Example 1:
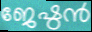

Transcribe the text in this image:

ജേഷ്ഠൻ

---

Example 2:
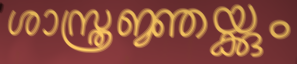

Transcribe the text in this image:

ശാസ്ത്രജ്ഞയ്ക്കും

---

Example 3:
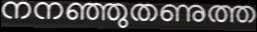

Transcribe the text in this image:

നനഞ്ഞുതണുത്ത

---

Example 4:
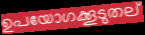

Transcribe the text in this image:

ഉപയോഗക്കൂടുതല്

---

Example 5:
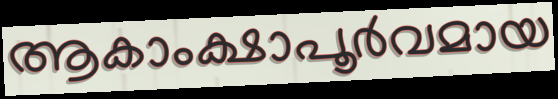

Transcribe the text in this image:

ആകാംക്ഷാപൂർവമായ